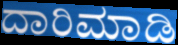
ದಾರಿಮಾಡಿ